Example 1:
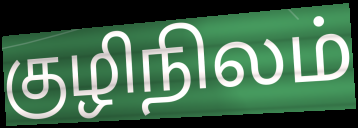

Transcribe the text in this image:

குழிநிலம்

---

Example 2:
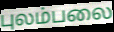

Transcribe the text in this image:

புலம்பலை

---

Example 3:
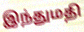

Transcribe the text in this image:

இந்துமதி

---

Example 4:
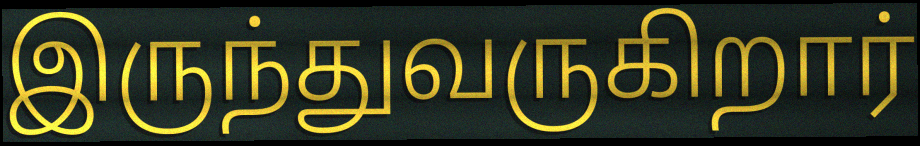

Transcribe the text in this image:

இருந்துவருகிறார்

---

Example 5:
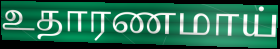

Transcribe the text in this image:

உதாரணமாய்